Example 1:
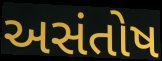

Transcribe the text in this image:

અસંતોષ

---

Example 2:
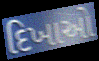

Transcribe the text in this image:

દિખાઓ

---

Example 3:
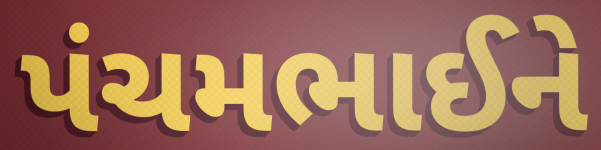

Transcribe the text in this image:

પંચમભાઈને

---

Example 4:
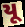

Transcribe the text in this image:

યૂ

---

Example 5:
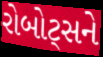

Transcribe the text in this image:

રોબોટ્સને